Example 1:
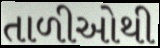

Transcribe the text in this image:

તાળીઓથી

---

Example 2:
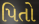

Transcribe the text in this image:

પિતો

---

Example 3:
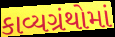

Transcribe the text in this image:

કાવ્યગ્રંથોમાં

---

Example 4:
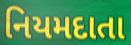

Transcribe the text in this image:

નિયમદાતા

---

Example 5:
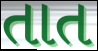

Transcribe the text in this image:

તાત